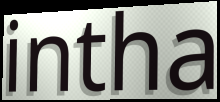
intha